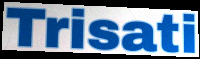
Trisati